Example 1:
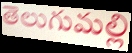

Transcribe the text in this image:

తెలుగుమల్లి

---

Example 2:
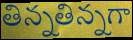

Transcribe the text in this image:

తిన్నతిన్నగా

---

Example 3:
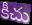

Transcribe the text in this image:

కీచు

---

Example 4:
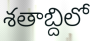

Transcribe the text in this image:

శతాబ్దిలో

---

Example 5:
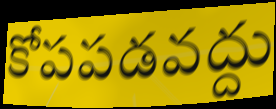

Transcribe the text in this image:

కోపపడవద్దు